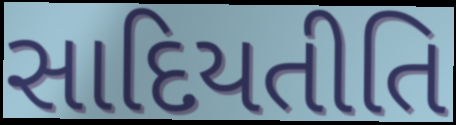
સાદિયતીતિ